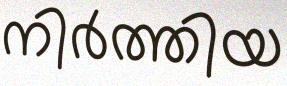
നിർത്തിയ